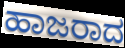
ಹಾಜರಾದ